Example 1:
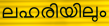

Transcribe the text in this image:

ലഹരിയിലും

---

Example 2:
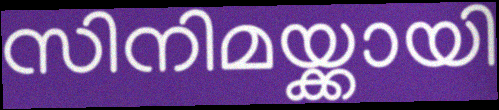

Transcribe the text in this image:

സിനിമയ്ക്കായി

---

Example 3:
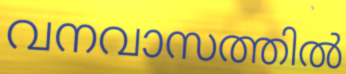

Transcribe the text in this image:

വനവാസത്തിൽ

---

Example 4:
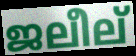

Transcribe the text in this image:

ജലീല്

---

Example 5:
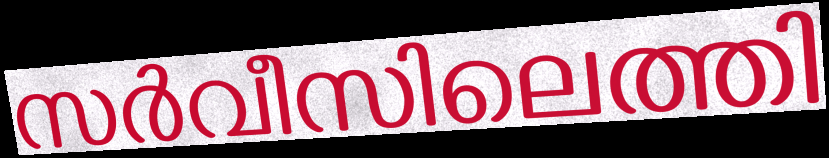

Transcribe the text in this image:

സർവീസിലെത്തി